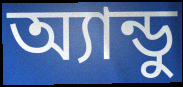
অ্যান্ডু